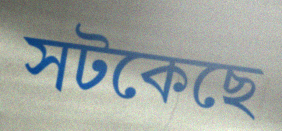
সটকেছে